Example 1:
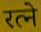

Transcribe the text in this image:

रत्ने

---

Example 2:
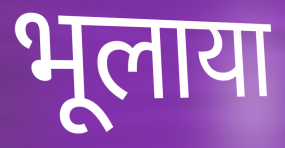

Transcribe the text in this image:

भूलाया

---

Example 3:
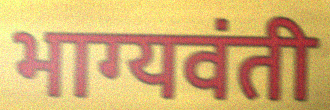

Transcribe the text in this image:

भाग्यवंती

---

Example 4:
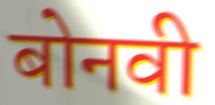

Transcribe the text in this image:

बोनवी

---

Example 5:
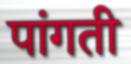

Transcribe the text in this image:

पांगती